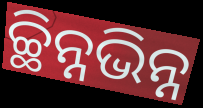
ଚ୍ଛିନ୍ନଭିନ୍ନ